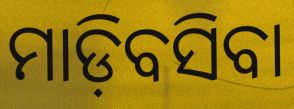
ମାଡ଼ିବସିବା